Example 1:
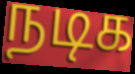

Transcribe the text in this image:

நடிக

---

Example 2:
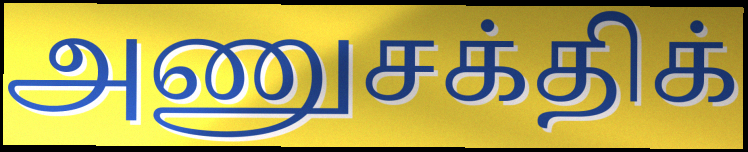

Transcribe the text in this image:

அணுசக்திக்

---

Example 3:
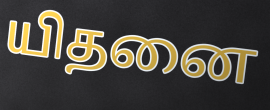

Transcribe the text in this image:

யிதனை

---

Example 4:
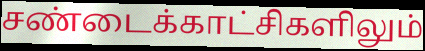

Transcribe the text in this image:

சண்டைக்காட்சிகளிலும்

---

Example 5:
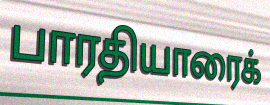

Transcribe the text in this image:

பாரதியாரைக்